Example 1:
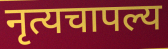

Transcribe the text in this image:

नृत्यचापल्य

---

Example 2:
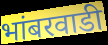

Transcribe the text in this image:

भांबरवाडी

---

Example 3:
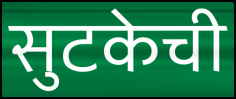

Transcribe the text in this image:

सुटकेची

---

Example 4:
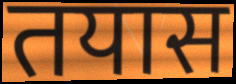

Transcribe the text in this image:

तयास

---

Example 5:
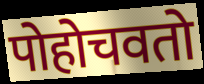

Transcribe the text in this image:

पोहोचवतो